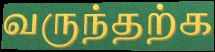
வருந்தற்க